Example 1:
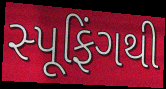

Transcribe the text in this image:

સ્પૂફિંગથી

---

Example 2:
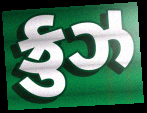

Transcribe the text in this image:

ક્રુઝ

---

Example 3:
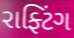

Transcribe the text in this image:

રાફ્ટિંગ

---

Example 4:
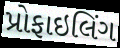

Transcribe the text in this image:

પ્રોફાઇલિંગ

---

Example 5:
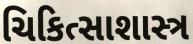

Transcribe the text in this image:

ચિકિત્સાશાસ્ત્ર